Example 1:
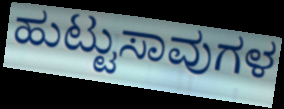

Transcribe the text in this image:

ಹುಟ್ಟುಸಾವುಗಳ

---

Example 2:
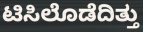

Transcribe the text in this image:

ಟಿಸಿಲೊಡೆದಿತ್ತು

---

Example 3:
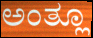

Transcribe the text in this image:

ಅಂತ್ಲೂ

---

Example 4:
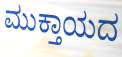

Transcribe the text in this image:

ಮುಕ್ತಾಯದ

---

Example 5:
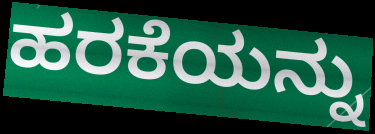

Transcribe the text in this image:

ಹರಕೆಯನ್ನು